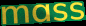
mass